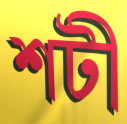
শটী